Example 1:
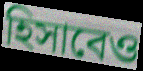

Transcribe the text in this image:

হিসাবেও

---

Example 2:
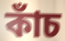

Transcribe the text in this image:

কাঁচ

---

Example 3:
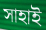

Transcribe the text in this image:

সাহাই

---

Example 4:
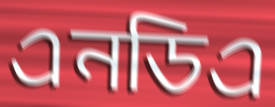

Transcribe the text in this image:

এনডিএ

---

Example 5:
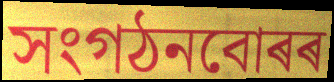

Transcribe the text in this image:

সংগঠনবোৰৰ